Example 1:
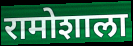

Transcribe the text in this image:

रामोशाला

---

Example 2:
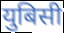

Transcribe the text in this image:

युबिसी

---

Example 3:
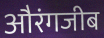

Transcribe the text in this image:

औरंगजीब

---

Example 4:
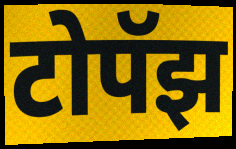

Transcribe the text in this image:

टोपॅझ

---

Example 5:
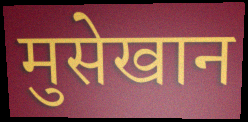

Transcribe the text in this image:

मुसेखान